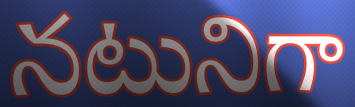
నటునిగా